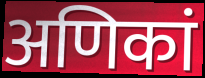
अणिकां